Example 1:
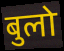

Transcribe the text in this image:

बुलो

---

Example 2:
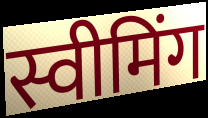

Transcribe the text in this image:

स्‍वीमिंग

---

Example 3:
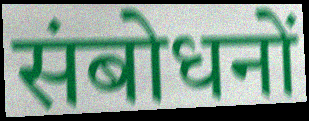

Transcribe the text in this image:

संबोधनों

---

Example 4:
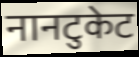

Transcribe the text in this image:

नानटुकेट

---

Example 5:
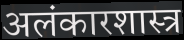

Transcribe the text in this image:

अलंकारशास्त्र